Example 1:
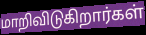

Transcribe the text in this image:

மாறிவிடுகிறார்கள்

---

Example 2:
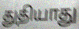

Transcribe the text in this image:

துதியாது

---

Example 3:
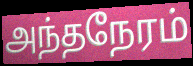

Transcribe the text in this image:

அந்தநேரம்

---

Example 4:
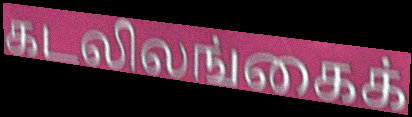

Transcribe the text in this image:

கடலிலங்கைக்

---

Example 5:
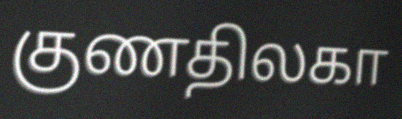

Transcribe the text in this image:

குணதிலகா